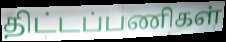
திட்டப்பணிகள்